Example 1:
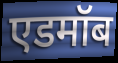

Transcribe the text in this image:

एडमॉब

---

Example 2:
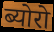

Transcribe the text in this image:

ब्योरो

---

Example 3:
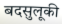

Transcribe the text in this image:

बदसुलूकी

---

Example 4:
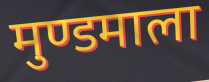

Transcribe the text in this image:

मुण्डमाला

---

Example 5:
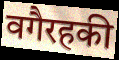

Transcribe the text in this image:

वगैरहकी